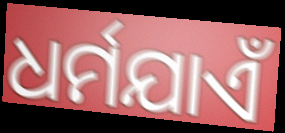
ଧର୍ମଯାଏଁ